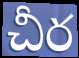
చీర